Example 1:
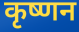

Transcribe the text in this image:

कृष्णन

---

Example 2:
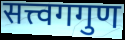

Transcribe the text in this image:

सत्त्वगगुण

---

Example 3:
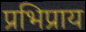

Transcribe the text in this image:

प्रभिप्राय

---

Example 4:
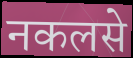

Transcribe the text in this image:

नकलसे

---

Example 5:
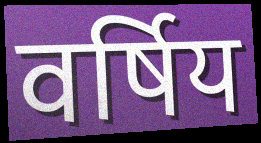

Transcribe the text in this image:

वर्षिय